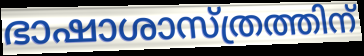
ഭാഷാശാസ്ത്രത്തിന്